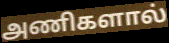
அணிகளால்